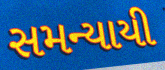
સમન્યાયી